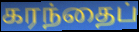
கரந்தைப்